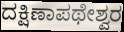
ದಕ್ಷಿಣಾಪಥೇಶ್ವರ